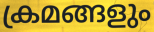
ക്രമങ്ങളും